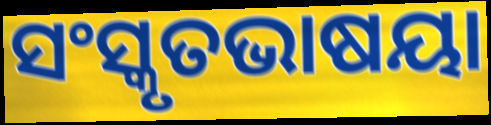
ସଂସ୍କୃତଭାଷୟା